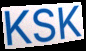
KSK